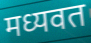
मध्यवत